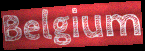
Belgium